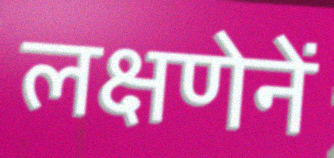
लक्षणेनें